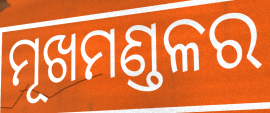
ମୂଖମଣ୍ଡଳର